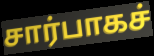
சார்பாகச்